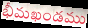
భీమఖండము